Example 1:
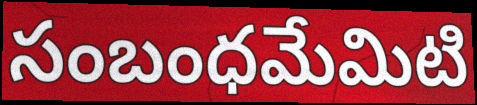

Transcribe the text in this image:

సంబంధమేమిటి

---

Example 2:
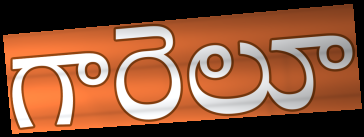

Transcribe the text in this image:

గారెలూ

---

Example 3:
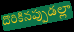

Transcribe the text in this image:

దొరికినప్పుడల్లా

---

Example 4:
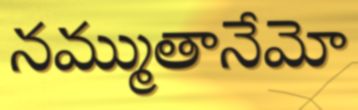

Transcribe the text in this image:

నమ్ముతానేమో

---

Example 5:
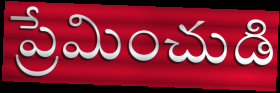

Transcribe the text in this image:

ప్రేమించుడి